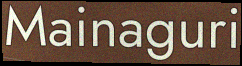
Mainaguri